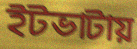
ইটভাটায়